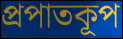
প্রপাতকূপ